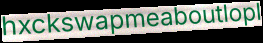
hxckswapmeaboutlopl